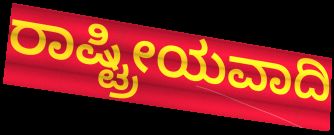
ರಾಷ್ಟ್ರೀಯವಾದಿ